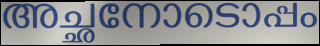
അച്ഛനോടൊപ്പം